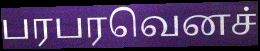
பரபரவெனச்